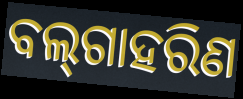
ବଲ୍‌ଗାହରିଣ